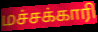
மச்சக்காரி